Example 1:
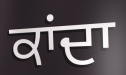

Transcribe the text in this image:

ਕਾਂਦਾ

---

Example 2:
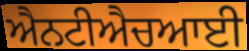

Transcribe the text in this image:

ਐਨਟੀਐਚਆਈ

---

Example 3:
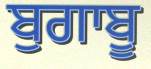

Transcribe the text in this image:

ਬੁਗਾਬੂ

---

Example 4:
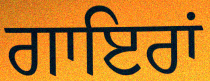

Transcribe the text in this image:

ਗਾਇਰਾਂ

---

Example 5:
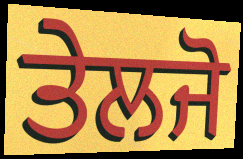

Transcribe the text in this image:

ਤੇਲਜੋ